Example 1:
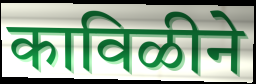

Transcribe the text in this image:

काविळीने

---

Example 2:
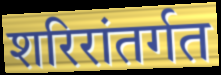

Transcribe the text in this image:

शरिरांतर्गत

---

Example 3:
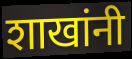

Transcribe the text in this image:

शाखांनी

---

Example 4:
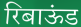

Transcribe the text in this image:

रिबाऊंड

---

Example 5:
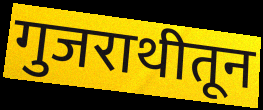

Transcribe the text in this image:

गुजराथीतून